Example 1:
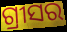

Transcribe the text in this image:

ଗ୍ରୀସର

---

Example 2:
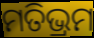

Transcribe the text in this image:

ମତିଭ୍ରମ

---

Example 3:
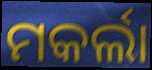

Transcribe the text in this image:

ମକର୍ଲା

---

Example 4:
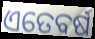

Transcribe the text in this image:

ଏତେବର୍ଷ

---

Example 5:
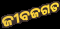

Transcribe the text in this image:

ଜୀବଜଗତ